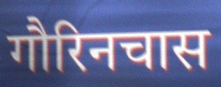
गौरिनचास